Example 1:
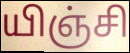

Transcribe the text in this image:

யிஞ்சி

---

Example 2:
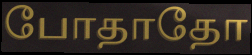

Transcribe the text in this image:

போதாதோ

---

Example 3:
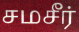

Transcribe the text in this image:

சமசீர்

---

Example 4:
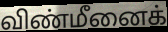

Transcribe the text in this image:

விண்மீனைக்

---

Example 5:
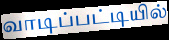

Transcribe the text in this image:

வாடிப்பட்டியில்